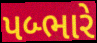
પબ્ભારે